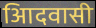
आिदवासी